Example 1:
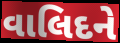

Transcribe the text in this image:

વાલિદને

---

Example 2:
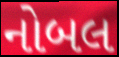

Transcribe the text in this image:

નોબલ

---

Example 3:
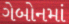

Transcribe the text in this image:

ગેબોનમાં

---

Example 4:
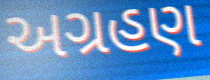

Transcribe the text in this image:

અગ્રહણ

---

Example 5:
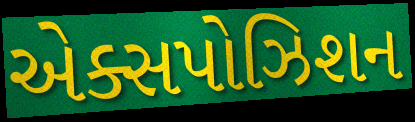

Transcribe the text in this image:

એક્સપોઝિશન